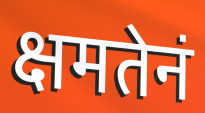
क्षमतेनं